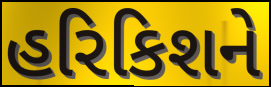
હરિકિશને